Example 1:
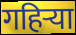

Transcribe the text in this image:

गहिर्‍या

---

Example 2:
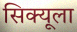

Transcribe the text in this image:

सिक्यूला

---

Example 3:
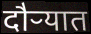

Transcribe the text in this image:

दौऱ्यात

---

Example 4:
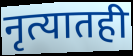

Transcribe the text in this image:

नृत्यातही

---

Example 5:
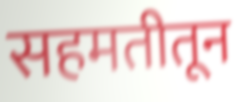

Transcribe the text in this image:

सहमतीतून